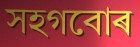
সহগবোৰ